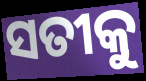
ସତୀକୁ